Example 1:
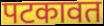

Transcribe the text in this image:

पटकावत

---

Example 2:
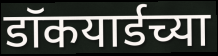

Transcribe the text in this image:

डॉकयार्डच्या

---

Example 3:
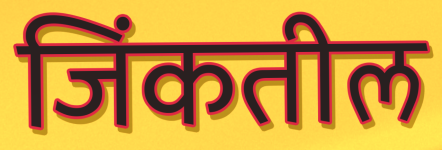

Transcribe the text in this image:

जिंकतील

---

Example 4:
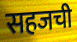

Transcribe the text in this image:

सहजची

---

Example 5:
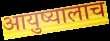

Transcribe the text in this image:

आयुष्यालाच